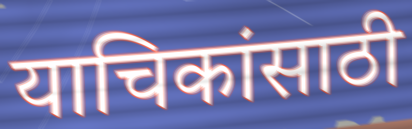
याचिकांसाठी